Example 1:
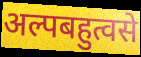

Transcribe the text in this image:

अल्पबहुत्वसे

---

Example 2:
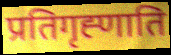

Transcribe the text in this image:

प्रतिगृह्णाति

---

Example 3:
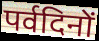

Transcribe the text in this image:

पर्वदिनों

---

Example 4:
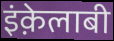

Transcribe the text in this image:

इंक़ेलाबी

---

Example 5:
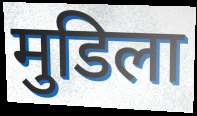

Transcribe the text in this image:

मुडिला